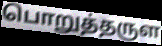
பொறுத்தருள